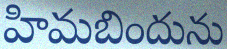
హిమబిందును